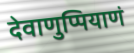
देवाणुप्पियाणं